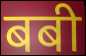
बबी